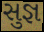
સુજ્ઞ